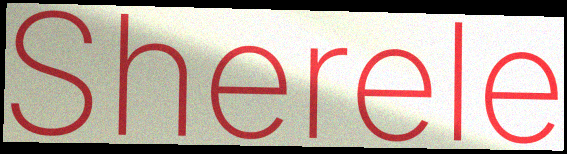
Sherele